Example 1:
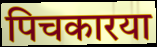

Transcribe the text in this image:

पिचकारया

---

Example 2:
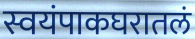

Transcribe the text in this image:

स्वयंपाकघरातलं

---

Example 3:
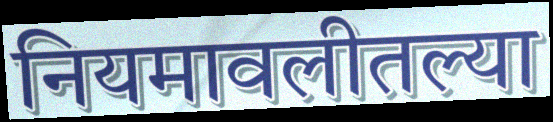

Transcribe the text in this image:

नियमावलीतल्या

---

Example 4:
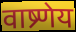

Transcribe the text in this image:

वाष्र्णेय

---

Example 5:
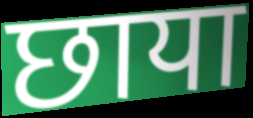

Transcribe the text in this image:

छाया